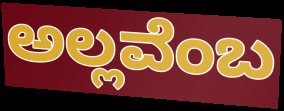
ಅಲ್ಲವೆಂಬ